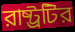
রাষ্ট্রটির